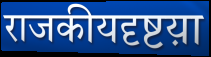
राजकीयदृष्टय़ा